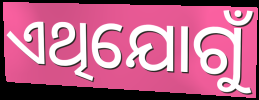
ଏଥିଯୋଗୁଁ